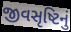
જીવસૃષ્ટિનું